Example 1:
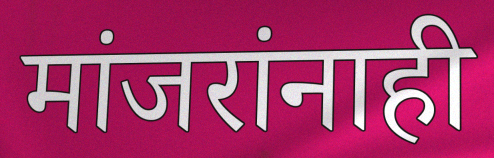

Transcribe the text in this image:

मांजरांनाही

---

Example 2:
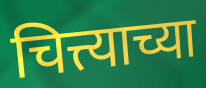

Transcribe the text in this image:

चित्त्याच्या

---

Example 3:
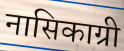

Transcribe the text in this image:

नासिकाग्री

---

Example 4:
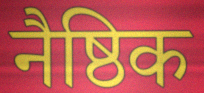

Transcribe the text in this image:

नैष्ठिक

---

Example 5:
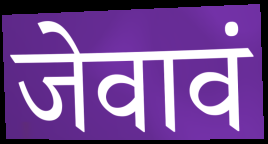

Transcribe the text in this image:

जेवावं